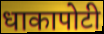
धाकापोटी